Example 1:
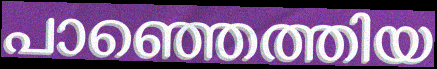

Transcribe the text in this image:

പാഞ്ഞെത്തിയ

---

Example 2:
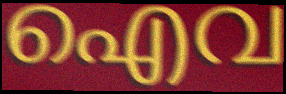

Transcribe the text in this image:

ഐവ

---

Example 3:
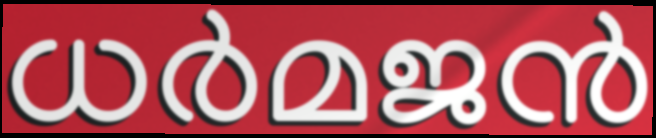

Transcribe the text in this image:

ധർമജൻ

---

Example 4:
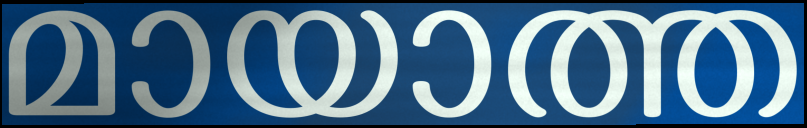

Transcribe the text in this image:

മായാത്ത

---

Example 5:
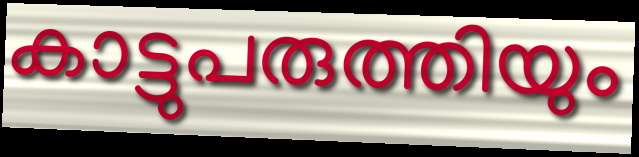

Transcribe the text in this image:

കാട്ടുപരുത്തിയും